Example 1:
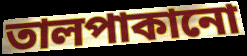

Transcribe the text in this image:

তালপাকানো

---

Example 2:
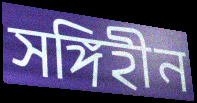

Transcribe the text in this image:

সঙ্গিহীন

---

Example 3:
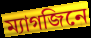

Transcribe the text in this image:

ম্যাগজিনে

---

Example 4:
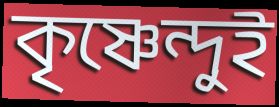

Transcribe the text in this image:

কৃষ্ণেন্দুই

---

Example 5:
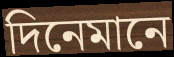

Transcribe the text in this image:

দিনেমানে